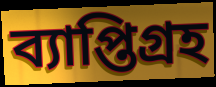
ব্যাপ্তিগ্রহ